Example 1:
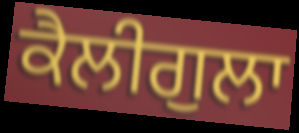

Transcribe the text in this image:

ਕੈਲੀਗੁਲਾ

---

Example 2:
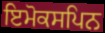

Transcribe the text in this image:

ਇਮੋਕਸਪਿਨ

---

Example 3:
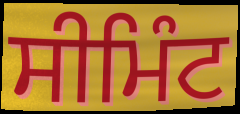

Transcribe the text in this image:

ਸੀਮਿੰਟ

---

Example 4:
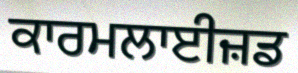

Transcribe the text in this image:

ਕਾਰਮਲਾਈਜ਼ਡ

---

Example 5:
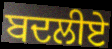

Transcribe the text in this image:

ਬਦਲੀਏ